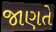
જાણતે